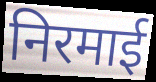
निरमाई